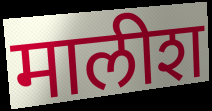
मालीश